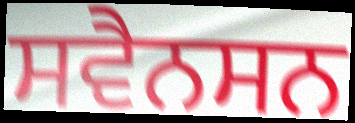
ਸਵੈਨਸਨ